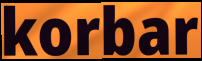
korbar